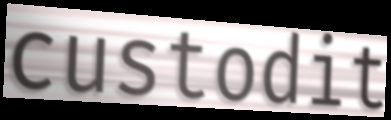
custodit